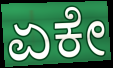
ಏಕೇ